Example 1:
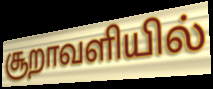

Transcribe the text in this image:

சூறாவளியில்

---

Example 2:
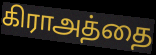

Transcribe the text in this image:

கிராஅத்தை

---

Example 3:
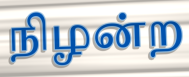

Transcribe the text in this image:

நிழன்ற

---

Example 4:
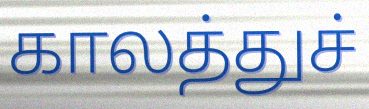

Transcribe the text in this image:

காலத்துச்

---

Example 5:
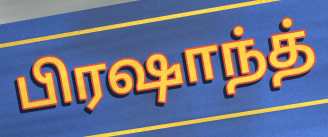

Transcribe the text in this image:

பிரஷாந்த்